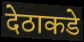
देठाकडे